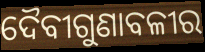
ଦୈବୀଗୁଣାବଳୀର